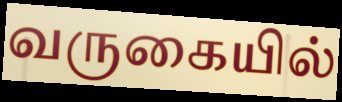
வருகையில்